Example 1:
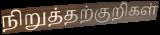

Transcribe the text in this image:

நிறுத்தற்குறிகள்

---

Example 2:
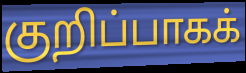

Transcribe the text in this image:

குறிப்பாகக்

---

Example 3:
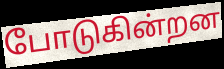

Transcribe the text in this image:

போடுகின்றன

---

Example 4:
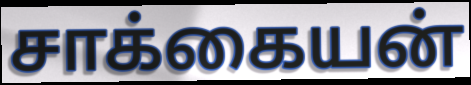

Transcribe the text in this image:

சாக்கையன்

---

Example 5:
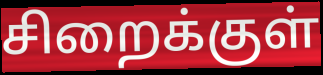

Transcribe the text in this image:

சிறைக்குள்